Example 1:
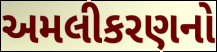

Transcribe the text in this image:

અમલીકરણનો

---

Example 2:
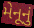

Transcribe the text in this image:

મેનૂનું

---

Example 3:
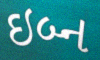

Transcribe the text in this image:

ઇબ્ન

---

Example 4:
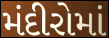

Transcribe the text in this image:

મંદીરોમાં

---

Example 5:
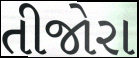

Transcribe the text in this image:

તીજોરા